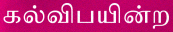
கல்விபயின்ற